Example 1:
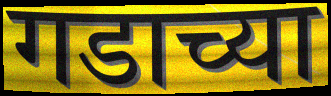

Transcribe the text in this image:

गडाच्या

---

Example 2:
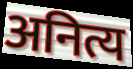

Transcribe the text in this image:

अनित्य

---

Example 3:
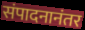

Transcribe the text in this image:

संपादनानंतर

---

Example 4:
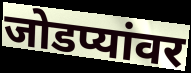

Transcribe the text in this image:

जोडप्यांवर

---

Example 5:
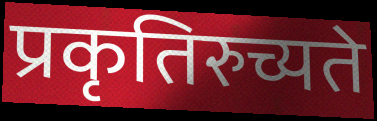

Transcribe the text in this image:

प्रकृतिरुच्यते